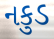
નકુડ